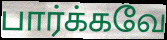
பார்க்கவே